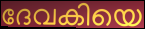
ദേവകിയെ